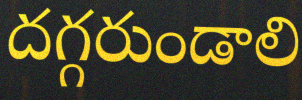
దగ్గరుండాలి